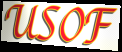
USOF